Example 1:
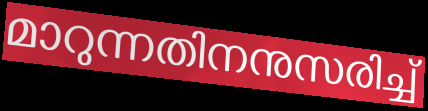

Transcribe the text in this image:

മാറുന്നതിനനുസരിച്ച്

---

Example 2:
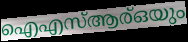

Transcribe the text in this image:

ഐഎസ്ആര്ഒയും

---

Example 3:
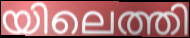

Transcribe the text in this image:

യിലെത്തി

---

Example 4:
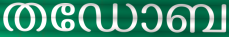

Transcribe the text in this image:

തഡോബ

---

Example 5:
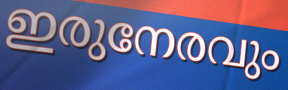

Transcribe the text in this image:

ഇരുനേരവും